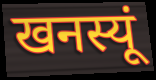
खनस्यूं